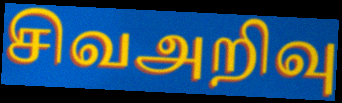
சிவஅறிவு